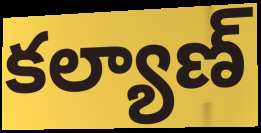
కల్యాణ్